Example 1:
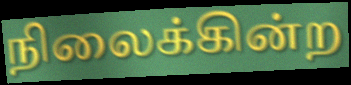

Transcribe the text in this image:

நிலைக்கின்ற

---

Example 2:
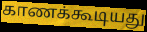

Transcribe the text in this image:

காணக்கூடியது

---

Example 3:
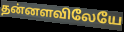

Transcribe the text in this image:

தன்னளவிலேயே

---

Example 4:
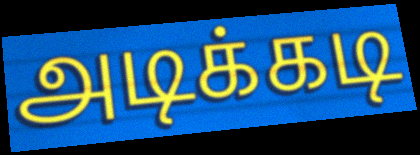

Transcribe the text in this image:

அடிக்கடி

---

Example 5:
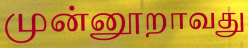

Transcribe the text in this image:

முன்னூறாவது